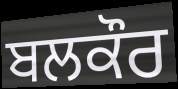
ਬਲਕੌਰ